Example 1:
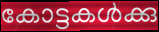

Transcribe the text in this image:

കോട്ടകൾക്കു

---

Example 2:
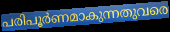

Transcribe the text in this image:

പരിപൂർണമാകുന്നതുവരെ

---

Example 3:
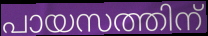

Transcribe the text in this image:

പായസത്തിന്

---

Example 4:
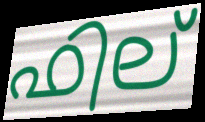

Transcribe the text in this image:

ഫില്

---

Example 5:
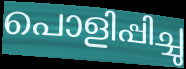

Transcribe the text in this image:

പൊളിപ്പിച്ചു